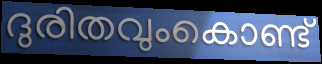
ദുരിതവുംകൊണ്ട്